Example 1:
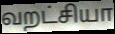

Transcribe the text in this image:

வறட்சியா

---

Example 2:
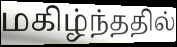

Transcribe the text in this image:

மகிழ்ந்ததில்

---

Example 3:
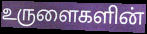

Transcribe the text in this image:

உருளைகளின்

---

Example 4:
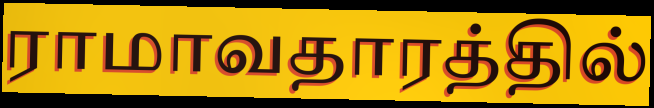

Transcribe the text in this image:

ராமாவதாரத்தில்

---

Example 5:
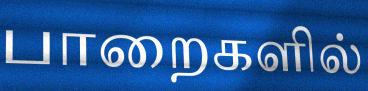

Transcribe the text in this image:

பாறைகளில்